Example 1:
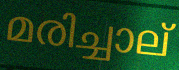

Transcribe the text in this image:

മരിച്ചാല്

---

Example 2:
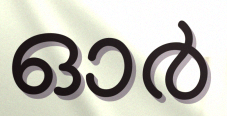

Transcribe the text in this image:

ഓർ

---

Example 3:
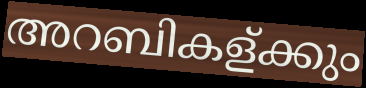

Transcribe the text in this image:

അറബികള്ക്കും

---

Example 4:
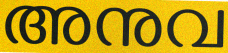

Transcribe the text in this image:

അനുവ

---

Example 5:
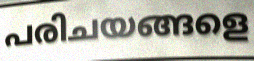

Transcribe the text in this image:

പരിചയങ്ങളെ